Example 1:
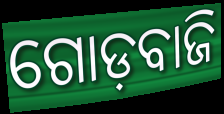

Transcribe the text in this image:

ଗୋଡ଼ବାଜି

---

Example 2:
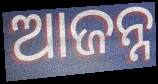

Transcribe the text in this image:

ଆଜନ୍ନ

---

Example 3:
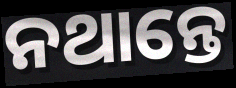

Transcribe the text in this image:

ନଥାନ୍ତେ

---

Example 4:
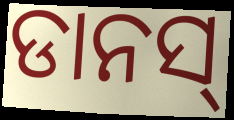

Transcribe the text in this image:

ଡାନସ୍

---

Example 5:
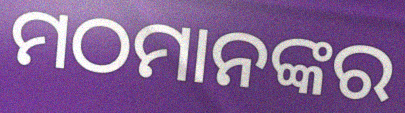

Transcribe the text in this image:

ମଠମାନଙ୍କର